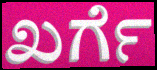
ಖರ್ಗೆ